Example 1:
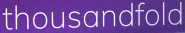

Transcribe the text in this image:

thousandfold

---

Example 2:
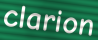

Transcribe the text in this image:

clarion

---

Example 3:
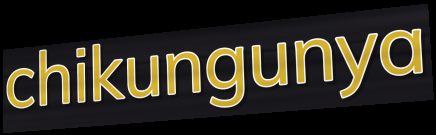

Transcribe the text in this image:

chikungunya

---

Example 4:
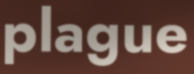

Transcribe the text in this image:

plague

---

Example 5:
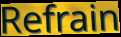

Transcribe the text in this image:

Refrain